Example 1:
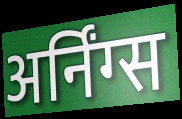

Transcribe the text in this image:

अर्निंग्स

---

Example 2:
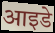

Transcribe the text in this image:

आइडे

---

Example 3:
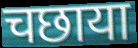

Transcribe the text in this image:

चछाया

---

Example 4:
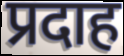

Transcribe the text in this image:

प्रदाह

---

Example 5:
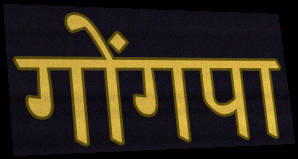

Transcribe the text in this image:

गोंगपा